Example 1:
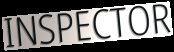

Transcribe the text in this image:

INSPECTOR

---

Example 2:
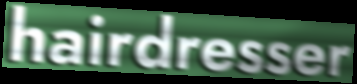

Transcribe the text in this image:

hairdresser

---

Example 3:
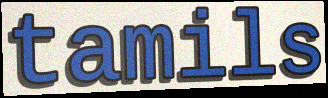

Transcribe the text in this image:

tamils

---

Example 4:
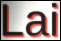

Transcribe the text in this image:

Lai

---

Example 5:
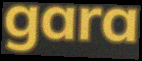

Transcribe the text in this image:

gara